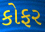
કોફર